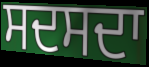
ਸਦਸਦਾ